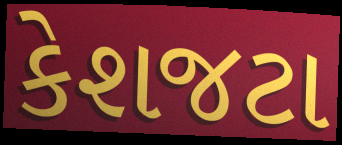
કેશજટા